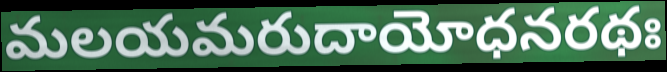
మలయమరుదాయోధనరథః